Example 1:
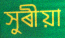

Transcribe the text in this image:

সুৰীয়া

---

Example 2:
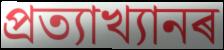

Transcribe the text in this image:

প্ৰত্যাখ্যানৰ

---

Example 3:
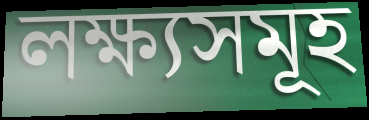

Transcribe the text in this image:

লক্ষ্যসমূহ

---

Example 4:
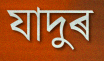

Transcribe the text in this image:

যাদুৰ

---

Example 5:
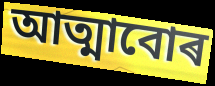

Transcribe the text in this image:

আত্মাবোৰ